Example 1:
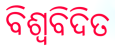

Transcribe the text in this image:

ବିଶ୍ବବିଦିତ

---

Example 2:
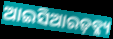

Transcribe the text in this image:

ଆଇସିଆରଡ଼ବ୍ଳ୍ୟ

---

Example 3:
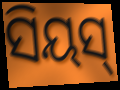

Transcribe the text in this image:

ସିୟସ୍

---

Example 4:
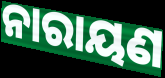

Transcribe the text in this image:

ନାରାୟଣ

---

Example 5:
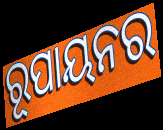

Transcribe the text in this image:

ରୂପାୟନର